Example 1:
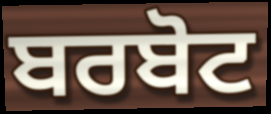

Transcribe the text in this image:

ਬਰਬੋਟ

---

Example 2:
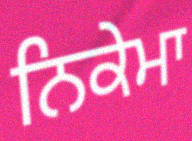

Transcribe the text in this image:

ਨਿਕੇਮਾ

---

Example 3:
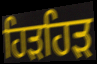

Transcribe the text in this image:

ਹਿੜਹਿੜ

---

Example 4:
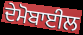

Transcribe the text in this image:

ਦੇਮੋਬਾਈਲ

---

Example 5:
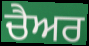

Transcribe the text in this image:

ਚੈਅਰ